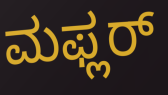
ಮಫ್ಲರ್